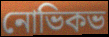
নোভিকভ